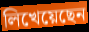
লিখেয়েছেন